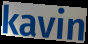
kavin